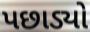
પછાડ્યો